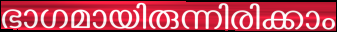
ഭാഗമായിരുന്നിരിക്കാം